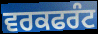
ਵਰਕਫਰੰਟ